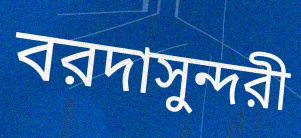
বরদাসুন্দরী